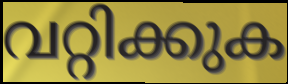
വറ്റിക്കുക